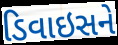
ડિવાઇસને